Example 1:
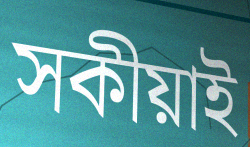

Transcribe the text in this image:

সকীয়াই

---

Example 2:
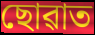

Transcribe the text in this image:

ছোৱাত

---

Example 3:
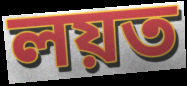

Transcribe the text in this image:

লয়ত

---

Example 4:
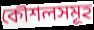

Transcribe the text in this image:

কৌশলসমূহ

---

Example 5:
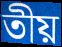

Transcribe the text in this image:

তীয়